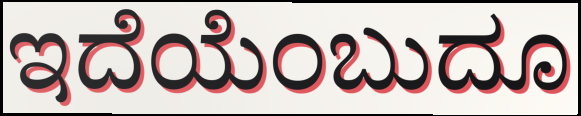
ಇದೆಯೆಂಬುದೂ